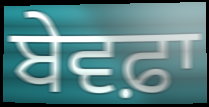
ਬੇਵਫ਼ਾ